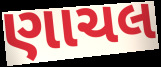
ણાચલ